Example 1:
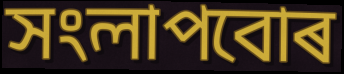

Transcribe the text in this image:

সংলাপবোৰ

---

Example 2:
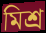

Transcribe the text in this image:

মিশ্ৰ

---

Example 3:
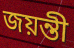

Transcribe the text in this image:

জয়ন্তী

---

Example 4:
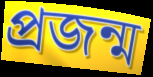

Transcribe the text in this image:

প্ৰজন্ম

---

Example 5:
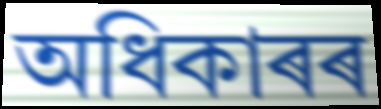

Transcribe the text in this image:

অধিকাৰৰ